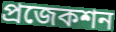
প্রজেকশন